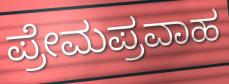
ಪ್ರೇಮಪ್ರವಾಹ